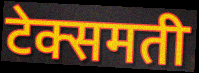
टेक्समती